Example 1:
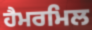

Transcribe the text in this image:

ਹੈਮਰਮਿਲ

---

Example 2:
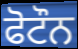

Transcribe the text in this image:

ਫੋਟੌਨ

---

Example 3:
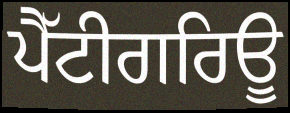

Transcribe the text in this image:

ਪੈੱਟੀਗਰਿਊ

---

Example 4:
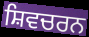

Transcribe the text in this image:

ਸ਼ਿਵਚਰਨ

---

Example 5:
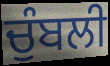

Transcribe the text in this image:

ਚੁੰਬਲੀ